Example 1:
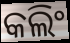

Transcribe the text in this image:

କଲିଂ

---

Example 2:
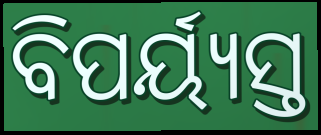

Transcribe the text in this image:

ବିପର୍ୟ୍ୟସ୍ତ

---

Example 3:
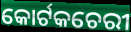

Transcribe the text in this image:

କୋର୍ଟକଚେରୀ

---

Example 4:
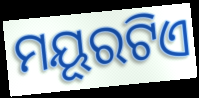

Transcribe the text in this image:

ମୟୂରଟିଏ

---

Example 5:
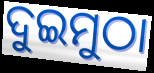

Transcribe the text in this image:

ଦୁଇମୁଠା